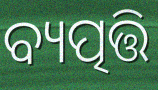
ବ୍ୟତ୍ପତ୍ତି